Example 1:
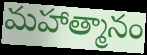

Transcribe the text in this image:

మహాత్మానం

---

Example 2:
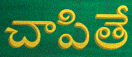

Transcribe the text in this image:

చాపితే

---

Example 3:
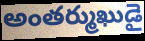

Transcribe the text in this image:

అంతర్ముఖుడై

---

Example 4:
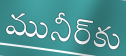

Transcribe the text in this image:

మునీర్‌కు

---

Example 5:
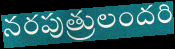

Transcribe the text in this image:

నరపుత్రులందరి